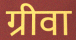
ग्रीवा